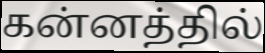
கன்னத்தில்